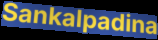
Sankalpadina